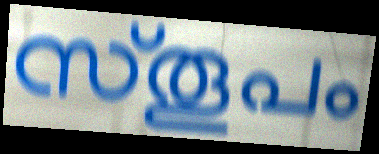
സ്തൂപം